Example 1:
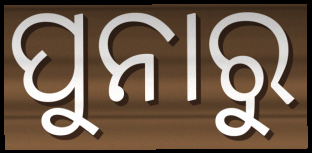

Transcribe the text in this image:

ପୁନାରୁ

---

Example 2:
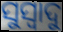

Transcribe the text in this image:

ସୁସ୍ଵାଦୁ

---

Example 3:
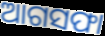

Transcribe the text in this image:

ଆଗସଫା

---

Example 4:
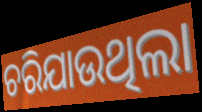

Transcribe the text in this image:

ଚରିଯାଉଥିଲା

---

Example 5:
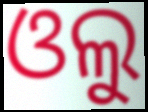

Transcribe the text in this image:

ଓଲୁ